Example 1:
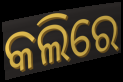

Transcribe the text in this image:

କଲିରେ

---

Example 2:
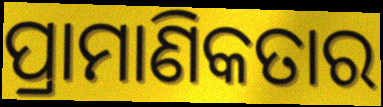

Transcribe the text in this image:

ପ୍ରାମାଣିକତାର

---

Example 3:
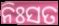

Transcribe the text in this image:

ନିଃସତ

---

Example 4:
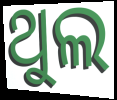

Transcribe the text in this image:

ଥୁଲ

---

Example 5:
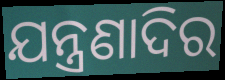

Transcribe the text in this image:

ଯନ୍ତ୍ରଣାଦିର